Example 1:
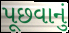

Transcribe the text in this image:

પૂછવાનું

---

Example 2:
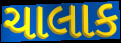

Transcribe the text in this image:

ચાલાક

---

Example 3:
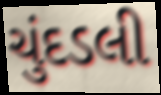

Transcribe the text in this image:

ચુંદડલી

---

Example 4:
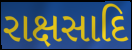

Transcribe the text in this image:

રાક્ષસાદિ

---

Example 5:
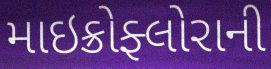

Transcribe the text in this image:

માઇક્રોફ્લોરાની